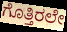
ಗೊತ್ತಿರಲೇ